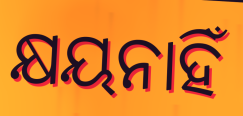
କ୍ଷୟନାହିଁ